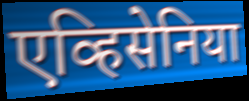
एव्हिसेनिया